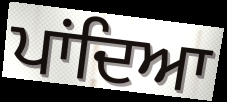
ਪਾਂਦਿਆ